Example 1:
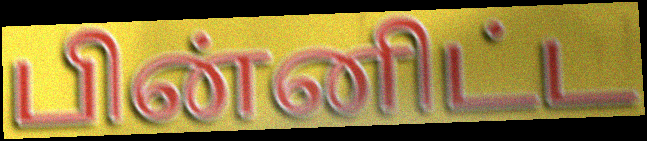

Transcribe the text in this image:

பின்னிட்ட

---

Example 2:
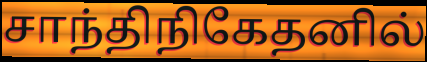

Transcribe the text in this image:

சாந்திநிகேதனில்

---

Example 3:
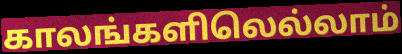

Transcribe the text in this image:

காலங்களிலெல்லாம்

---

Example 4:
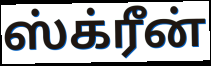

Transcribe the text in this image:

ஸ்க்ரீன்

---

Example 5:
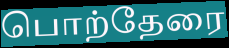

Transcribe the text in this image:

பொற்தேரை